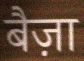
बैज़ा